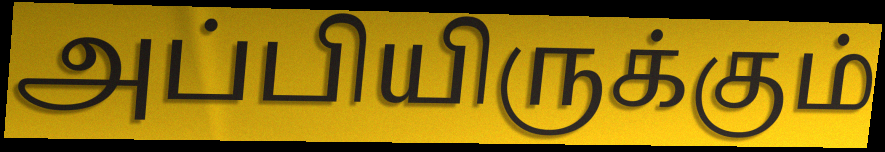
அப்பியிருக்கும்